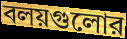
বলয়গুলোর